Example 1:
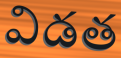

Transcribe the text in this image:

విడత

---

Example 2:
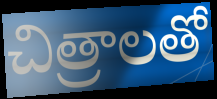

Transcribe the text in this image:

చిత్రాలతో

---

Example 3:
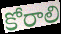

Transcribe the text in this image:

కోరాలి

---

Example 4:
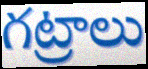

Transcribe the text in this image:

గట్రాలు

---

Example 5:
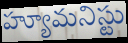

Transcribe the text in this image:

హ్యూమనిస్టు